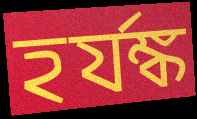
হর্যঙ্ক